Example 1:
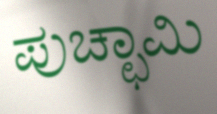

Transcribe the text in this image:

ಪುಚ್ಛಾಮಿ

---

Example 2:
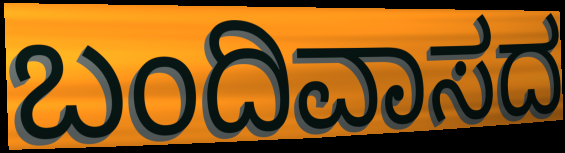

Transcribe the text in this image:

ಬಂದಿವಾಸದ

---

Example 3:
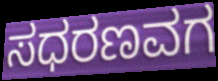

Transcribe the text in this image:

ಸಧರಣವಗ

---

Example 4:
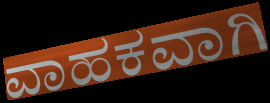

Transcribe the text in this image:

ವಾಹಕವಾಗಿ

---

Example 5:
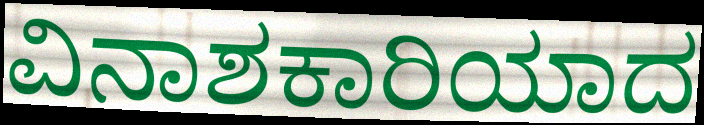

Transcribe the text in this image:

ವಿನಾಶಕಾರಿಯಾದ